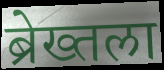
ब्रेख्तला